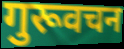
गुरूवचन